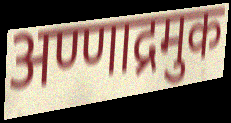
अण्णाद्रमुक